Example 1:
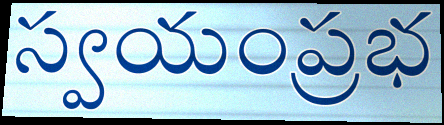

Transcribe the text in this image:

స్వయంప్రభ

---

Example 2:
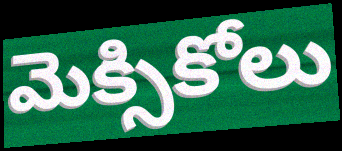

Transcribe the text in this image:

మెక్సికోలు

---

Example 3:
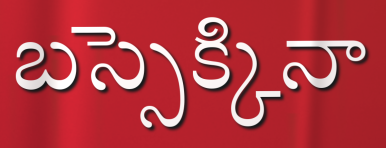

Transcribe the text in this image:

బస్సెక్కినా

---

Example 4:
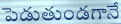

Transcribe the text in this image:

పెడుతుండగానే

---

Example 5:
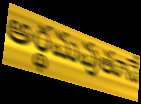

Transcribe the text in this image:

అర్థమవుతూనే